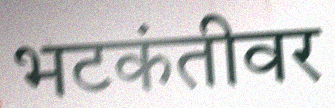
भटकंतीवर